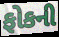
ફોકની